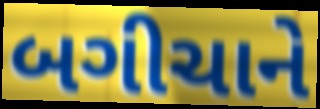
બગીચાને